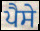
ਪੈਸੇ